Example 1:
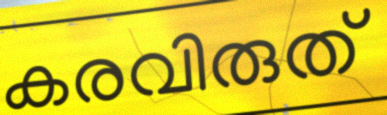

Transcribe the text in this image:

കരവിരുത്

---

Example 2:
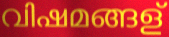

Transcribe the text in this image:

വിഷമങ്ങള്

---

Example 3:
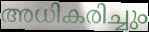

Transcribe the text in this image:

അധികരിച്ചും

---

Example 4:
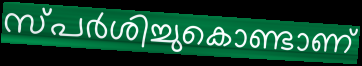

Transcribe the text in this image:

സ്പർശിച്ചുകൊണ്ടാണ്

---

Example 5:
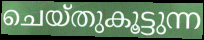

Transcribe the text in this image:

ചെയ്തുകൂട്ടുന്ന